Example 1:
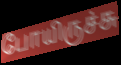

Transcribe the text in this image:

போயிருச்சு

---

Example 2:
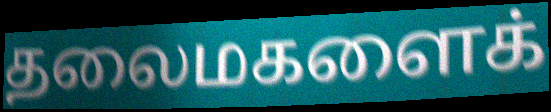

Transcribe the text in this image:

தலைமகளைக்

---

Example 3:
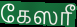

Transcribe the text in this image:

கேஸரீ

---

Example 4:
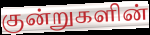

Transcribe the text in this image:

குன்றுகளின்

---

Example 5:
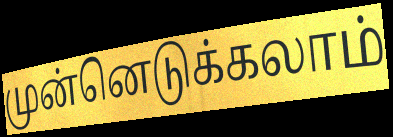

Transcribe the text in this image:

முன்னெடுக்கலாம்